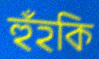
হুঁহকি